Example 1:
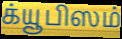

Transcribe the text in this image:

க்யூபிஸம்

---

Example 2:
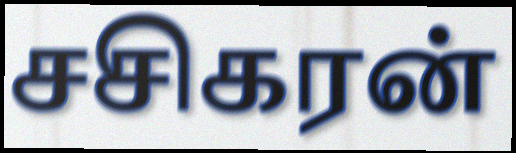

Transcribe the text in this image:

சசிகரன்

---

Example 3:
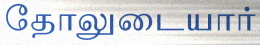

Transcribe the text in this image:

தோலுடையார்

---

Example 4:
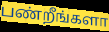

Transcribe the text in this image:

பண்றீங்களா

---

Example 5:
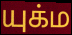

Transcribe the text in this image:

யுக்ம